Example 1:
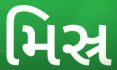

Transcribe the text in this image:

મિસ્ર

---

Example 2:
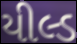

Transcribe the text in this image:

યીલ્ડ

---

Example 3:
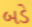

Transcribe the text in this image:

બડે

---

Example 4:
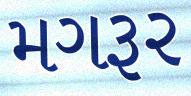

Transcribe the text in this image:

મગરૂર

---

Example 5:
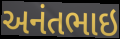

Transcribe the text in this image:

અનંતભાઇ